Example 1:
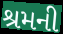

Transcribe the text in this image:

શ્રમની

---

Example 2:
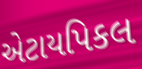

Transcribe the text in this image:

એટાયપિકલ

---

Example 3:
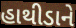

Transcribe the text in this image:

હાથીડાને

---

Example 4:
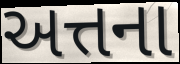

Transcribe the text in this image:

અત્તના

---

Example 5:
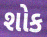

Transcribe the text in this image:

શોક